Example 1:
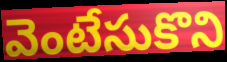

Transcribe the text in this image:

వెంటేసుకొని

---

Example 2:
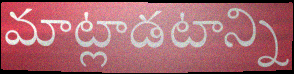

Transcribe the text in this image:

మాట్లాడటాన్ని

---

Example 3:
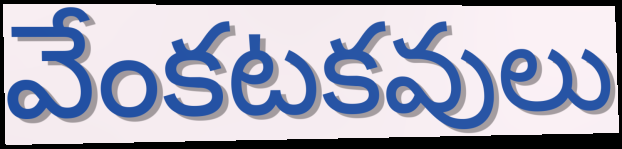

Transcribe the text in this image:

వేంకటకవులు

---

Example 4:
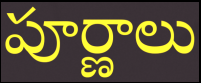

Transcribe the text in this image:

పూర్ణాలు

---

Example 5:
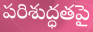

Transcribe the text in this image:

పరిశుద్ధతపై